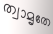
ത്വാമൃതേ